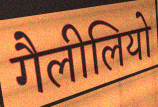
गैलीलियो